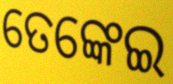
ତେଙ୍କେଇ